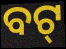
ବଟ୍